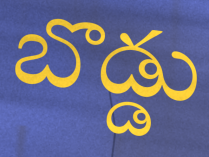
బొడ్డు